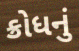
ક્રોધનું